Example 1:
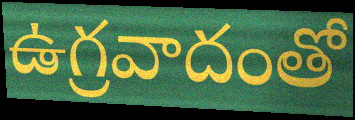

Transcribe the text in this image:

ఉగ్రవాదంతో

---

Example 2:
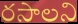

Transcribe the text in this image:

రసాలని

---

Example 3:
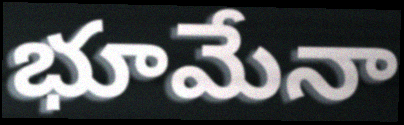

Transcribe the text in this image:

భూమేనా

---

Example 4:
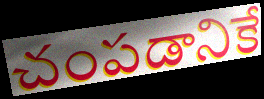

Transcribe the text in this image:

చంపడానికే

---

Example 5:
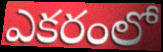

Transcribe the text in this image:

ఎకరంలో